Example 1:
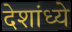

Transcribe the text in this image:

देशांध्ये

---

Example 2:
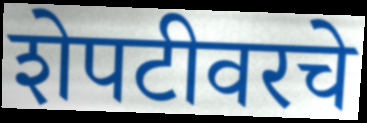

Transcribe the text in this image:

शेपटीवरचे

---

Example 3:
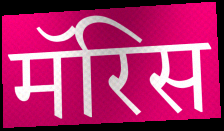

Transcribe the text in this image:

मॅरिस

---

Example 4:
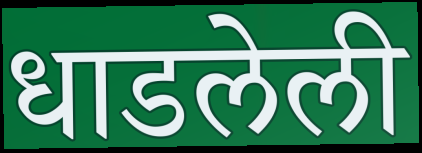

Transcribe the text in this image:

धाडलेली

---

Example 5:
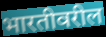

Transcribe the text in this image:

भारतीवरील